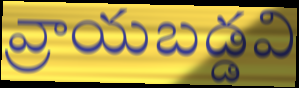
వ్రాయబడ్డవి